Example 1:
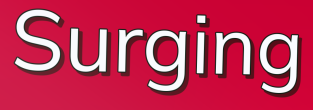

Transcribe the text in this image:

Surging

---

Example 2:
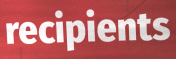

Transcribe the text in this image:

recipients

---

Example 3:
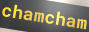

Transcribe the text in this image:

chamcham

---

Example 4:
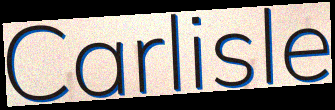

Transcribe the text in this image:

Carlisle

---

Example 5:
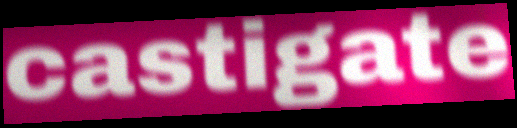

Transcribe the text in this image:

castigate